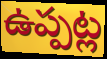
ఉప్పట్ల